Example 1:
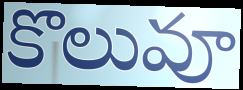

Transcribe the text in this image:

కొలువూ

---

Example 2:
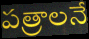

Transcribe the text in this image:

పత్రాలనే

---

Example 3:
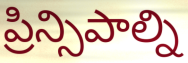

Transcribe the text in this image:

ప్రిన్సిపాల్ని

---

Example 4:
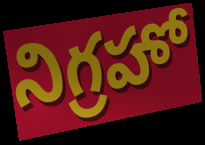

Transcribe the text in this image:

నిగ్రహో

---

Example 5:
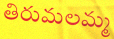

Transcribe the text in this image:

తిరుమలమ్మ